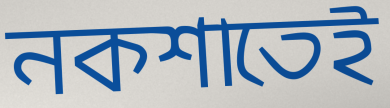
নকশাতেই